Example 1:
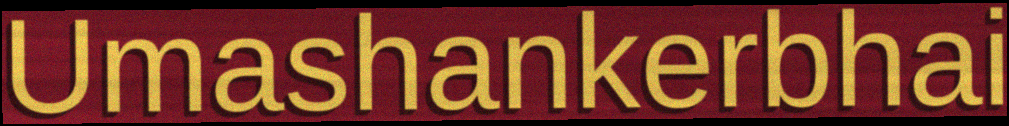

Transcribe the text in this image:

Umashankerbhai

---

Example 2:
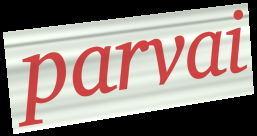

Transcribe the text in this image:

parvai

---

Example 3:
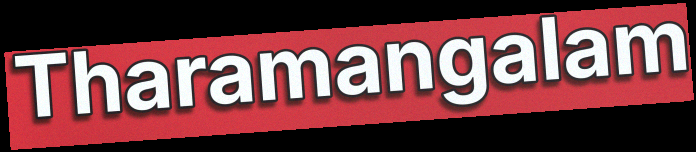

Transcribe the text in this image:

Tharamangalam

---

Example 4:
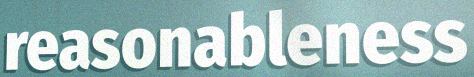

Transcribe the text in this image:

reasonableness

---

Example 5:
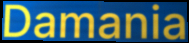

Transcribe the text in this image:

Damania